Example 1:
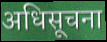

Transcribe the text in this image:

अधिसूचना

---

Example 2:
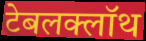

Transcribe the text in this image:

टेबलक्लॉथ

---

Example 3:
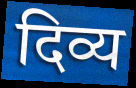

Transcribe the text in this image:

दिव्य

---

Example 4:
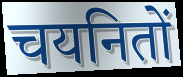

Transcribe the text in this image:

चयनितों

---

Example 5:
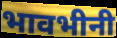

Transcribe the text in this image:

भावभीनी